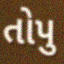
તોપુ